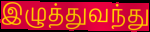
இழுத்துவந்து